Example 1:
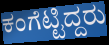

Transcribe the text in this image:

ಕಂಗೆಟ್ಟಿದ್ದರು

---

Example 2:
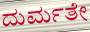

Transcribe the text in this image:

ದುರ್ಮತೇ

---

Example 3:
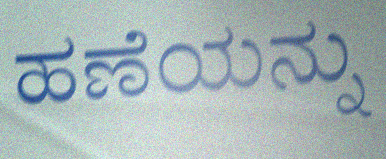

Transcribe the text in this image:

ಹಣೆಯನ್ನು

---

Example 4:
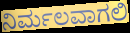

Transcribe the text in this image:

ನಿರ್ಮಲವಾಗಲಿ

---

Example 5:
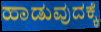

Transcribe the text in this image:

ಹಾಡುವುದಕ್ಕೆ